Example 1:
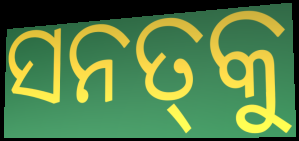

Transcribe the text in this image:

ସନତ୍‍କୁ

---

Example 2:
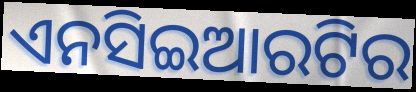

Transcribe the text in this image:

ଏନସିଇଆରଟିର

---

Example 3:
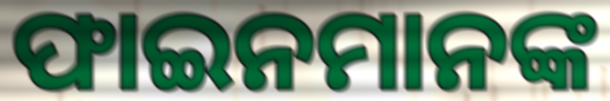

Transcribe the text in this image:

ଫାଇନମାନଙ୍କ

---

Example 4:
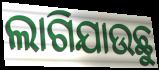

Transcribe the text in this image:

ଲାଗିଯାଉଛୁ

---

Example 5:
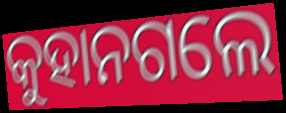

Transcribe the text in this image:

କୁହାନଗଲେ